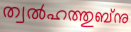
ത്വൽഹത്തുബ്നു